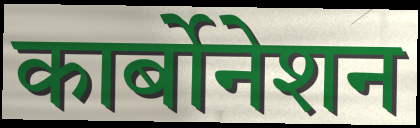
कार्बोनेशन